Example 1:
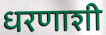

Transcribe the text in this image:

धरणाशी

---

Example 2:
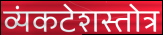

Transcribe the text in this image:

व्यंकटेशस्तोत्र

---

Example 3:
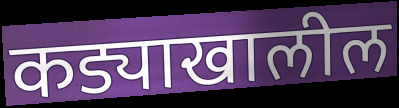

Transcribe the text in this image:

कड्याखालील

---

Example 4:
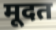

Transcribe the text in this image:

मूदत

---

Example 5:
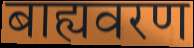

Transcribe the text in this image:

बाह्यवरण